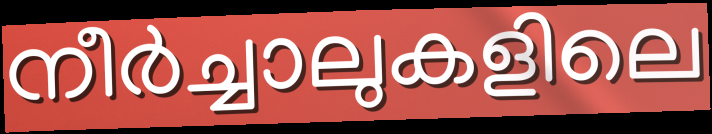
നീർച്ചാലുകളിലെ